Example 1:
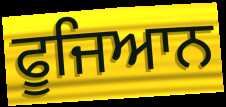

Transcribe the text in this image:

ਫੂਜਿਆਨ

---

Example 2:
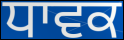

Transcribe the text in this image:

ਧਾਵਕ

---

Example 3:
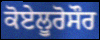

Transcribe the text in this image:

ਕੋਏਲੂਰੋਸੌਰ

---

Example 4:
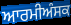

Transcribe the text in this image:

ਆਰਮੀਅੰਸਕ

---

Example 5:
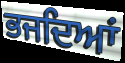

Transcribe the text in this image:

ਭਜਦਿਆਂ